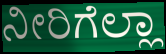
ನೀರಿಗೆಲ್ಲಾ